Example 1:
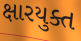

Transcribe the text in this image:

ક્ષારયુક્ત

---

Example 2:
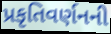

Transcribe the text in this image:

પ્રકૃતિવર્ણનની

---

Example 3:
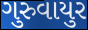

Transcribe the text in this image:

ગુરુવાયુર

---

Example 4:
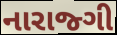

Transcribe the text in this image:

નારાજ્ગી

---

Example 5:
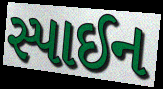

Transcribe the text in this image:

સ્પાઈન